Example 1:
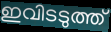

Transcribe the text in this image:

ഇവിടടുത്ത്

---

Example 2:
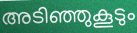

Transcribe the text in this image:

അടിഞ്ഞുകൂടും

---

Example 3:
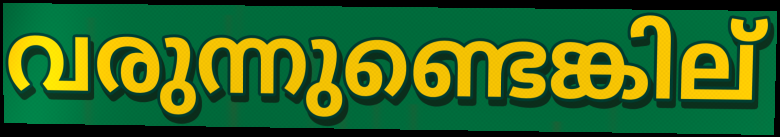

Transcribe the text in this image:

വരുന്നുണ്ടെങ്കില്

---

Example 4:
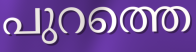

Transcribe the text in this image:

പുറത്തെ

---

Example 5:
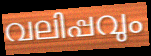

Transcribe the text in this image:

വലിപ്പവും